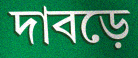
দাবড়ে